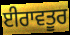
ਈਰਾਵਤੂਰ